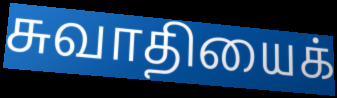
சுவாதியைக்